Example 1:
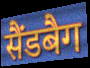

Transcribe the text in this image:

सैंडबैग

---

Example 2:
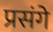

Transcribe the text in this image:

प्रसंगे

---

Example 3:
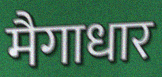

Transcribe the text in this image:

मैगाधार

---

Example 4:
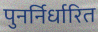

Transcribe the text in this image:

पुनर्निर्धारित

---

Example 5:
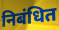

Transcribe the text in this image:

निबंधित